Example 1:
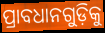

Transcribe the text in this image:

ପ୍ରାବଧାନଗୁଡ଼ିକୁ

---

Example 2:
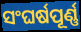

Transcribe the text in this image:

ସଂଘର୍ଷପୂର୍ଣ୍ଣ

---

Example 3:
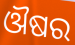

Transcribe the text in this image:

ଔଷର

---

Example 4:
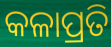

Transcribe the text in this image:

କଳାପ୍ରତି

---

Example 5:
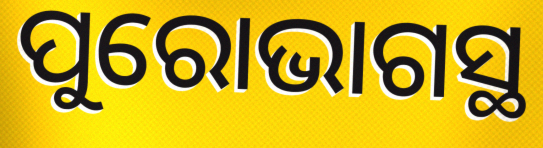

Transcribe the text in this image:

ପୁରୋଭାଗସ୍ଥ